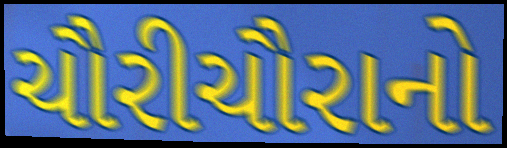
ચૌરીચૌરાનો